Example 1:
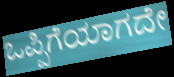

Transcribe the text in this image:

ಒಪ್ಪಿಗೆಯಾಗದೇ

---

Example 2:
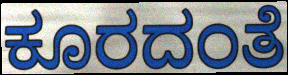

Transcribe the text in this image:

ಕೂರದಂತೆ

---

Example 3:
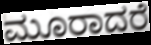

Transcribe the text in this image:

ಮೂರಾದರೆ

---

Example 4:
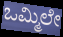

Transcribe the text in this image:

ಒಮ್ಮಿಲೇ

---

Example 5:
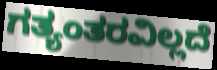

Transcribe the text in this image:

ಗತ್ಯಂತರವಿಲ್ಲದೆ